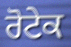
ਰੋਟੇਕ